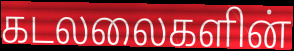
கடலலைகளின்